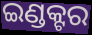
ଇଣ୍ଡକ୍ଟର